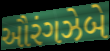
ઔરંગઝેબે